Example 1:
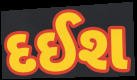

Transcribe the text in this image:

દઈશ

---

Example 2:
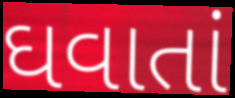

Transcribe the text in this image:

ઘવાતાં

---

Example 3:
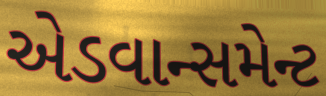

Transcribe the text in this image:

એડવાન્સમેન્ટ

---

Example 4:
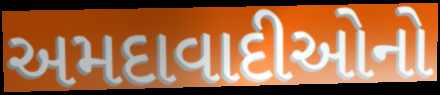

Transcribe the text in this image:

અમદાવાદીઓનો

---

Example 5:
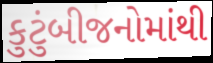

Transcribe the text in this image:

કુટુંબીજનોમાંથી